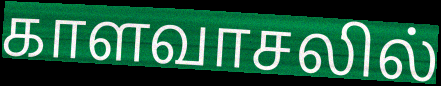
காளவாசலில்